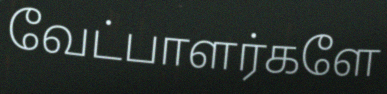
வேட்பாளர்களே